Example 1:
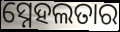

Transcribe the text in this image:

ସ୍ନେହଲତାର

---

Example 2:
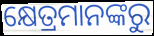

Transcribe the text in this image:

କ୍ଷେତ୍ରମାନଙ୍କରୁ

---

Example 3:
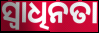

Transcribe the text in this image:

ସ୍ୱାଧିନତା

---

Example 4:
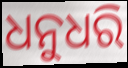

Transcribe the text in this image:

ଧନୁଧରି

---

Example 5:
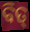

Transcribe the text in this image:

ବିତ୍